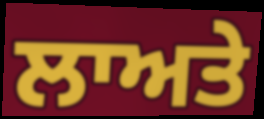
ਲਾਅਤੇ